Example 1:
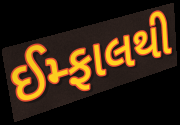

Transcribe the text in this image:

ઈમ્ફાલથી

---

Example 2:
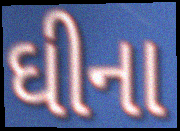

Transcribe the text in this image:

ઘીના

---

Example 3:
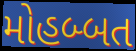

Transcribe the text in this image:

મોહબ્બત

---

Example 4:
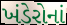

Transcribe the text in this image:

ખંડેરોનાં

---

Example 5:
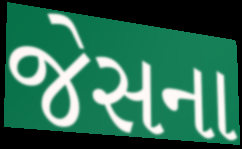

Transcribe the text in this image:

જેસના